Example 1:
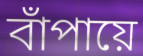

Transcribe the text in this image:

বাঁপায়ে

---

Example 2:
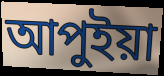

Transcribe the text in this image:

আপুইয়া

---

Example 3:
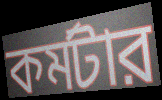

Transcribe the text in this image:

কর্মটার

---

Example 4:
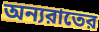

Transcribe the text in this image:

অন্যরাতের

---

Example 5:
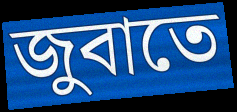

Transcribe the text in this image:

জুবাতে